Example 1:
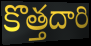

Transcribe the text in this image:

కొత్తదారి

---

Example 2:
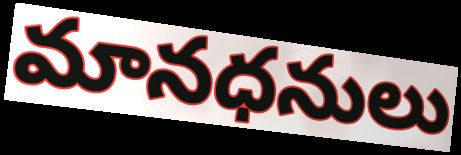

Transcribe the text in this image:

మానధనులు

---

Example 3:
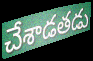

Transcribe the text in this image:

చేశాడతడు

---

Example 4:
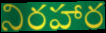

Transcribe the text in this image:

నిరహార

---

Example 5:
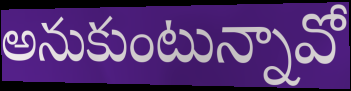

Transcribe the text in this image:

అనుకుంటున్నావో